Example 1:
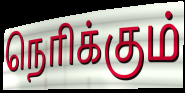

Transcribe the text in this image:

நெரிக்கும்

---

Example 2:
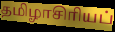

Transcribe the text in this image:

தமிழாசிரியப்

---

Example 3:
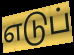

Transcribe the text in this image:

எடுப்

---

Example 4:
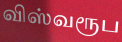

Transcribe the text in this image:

விஸ்வரூப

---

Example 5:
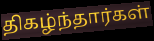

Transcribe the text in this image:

திகழ்ந்தார்கள்